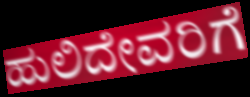
ಹುಲಿದೇವರಿಗೆ